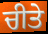
ਚੀਤੇ